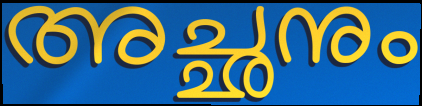
അച്ഛനും